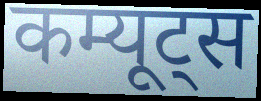
कम्यूट्स